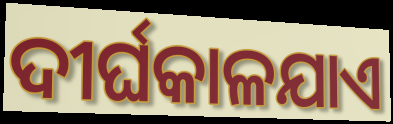
ଦୀର୍ଘକାଳଯାଏ